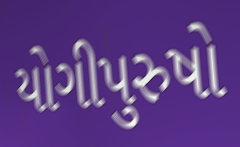
યોગીપુરુષો